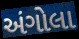
અંગોલા